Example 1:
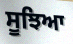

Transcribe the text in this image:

ਸੂਝਿਆ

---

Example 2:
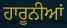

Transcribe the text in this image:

ਹਾਰੂਨੀਆਂ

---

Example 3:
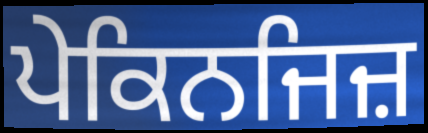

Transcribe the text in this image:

ਪੇਕਿਨਜਿਜ਼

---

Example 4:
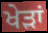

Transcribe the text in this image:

ਖੇੜਾਂ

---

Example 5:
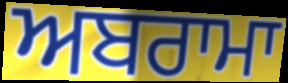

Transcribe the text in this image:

ਅਬਰਾਮਾ